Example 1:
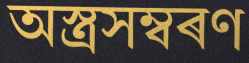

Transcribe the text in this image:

অস্ত্ৰসম্বৰণ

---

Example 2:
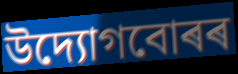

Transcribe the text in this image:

উদ্যোগবোৰৰ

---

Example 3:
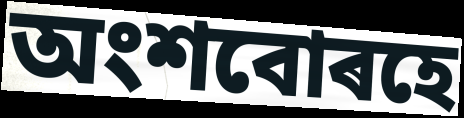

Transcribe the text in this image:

অংশবোৰহে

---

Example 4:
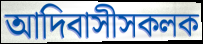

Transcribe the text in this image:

আদিবাসীসকলক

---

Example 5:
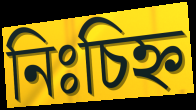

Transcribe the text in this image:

নিঃচিহ্ন